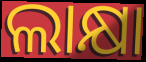
ଲାକ୍ଷା